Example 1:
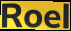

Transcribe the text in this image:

Roel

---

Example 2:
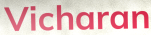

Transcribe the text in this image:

Vicharan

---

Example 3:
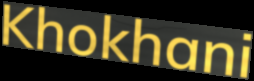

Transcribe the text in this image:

Khokhani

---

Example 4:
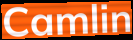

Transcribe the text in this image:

Camlin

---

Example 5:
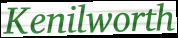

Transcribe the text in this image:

Kenilworth